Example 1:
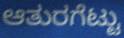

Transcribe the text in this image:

ಆತುರಗೆಟ್ಟು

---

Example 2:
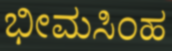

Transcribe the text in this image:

ಭೀಮಸಿಂಹ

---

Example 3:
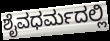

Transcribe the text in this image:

ಶೈವಧರ್ಮದಲ್ಲಿ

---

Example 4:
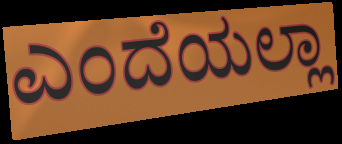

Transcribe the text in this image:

ಎಂದೆಯಲ್ಲಾ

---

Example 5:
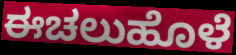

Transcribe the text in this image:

ಈಚಲುಹೊಳೆ